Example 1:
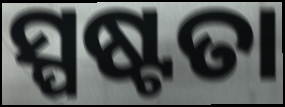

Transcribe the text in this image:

ସ୍ପଷ୍ଟତା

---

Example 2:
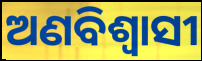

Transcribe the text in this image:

ଅଣବିଶ୍ୱାସୀ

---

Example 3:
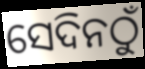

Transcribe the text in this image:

ସେଦିନଠୁଁ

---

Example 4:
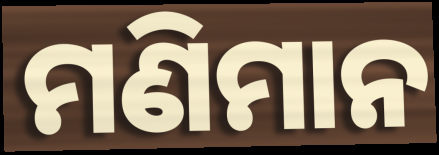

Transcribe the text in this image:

ମଣିମାନ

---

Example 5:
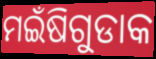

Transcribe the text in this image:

ମଇଁଷିଗୁଡାକ